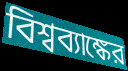
বিশ্বব্যাঙ্কের